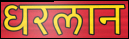
धरलान